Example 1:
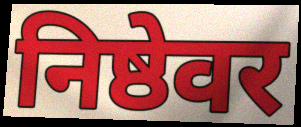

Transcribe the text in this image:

निष्ठेवर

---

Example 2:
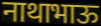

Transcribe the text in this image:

नाथाभाऊ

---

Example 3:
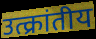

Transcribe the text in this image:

उत्क्रांतीय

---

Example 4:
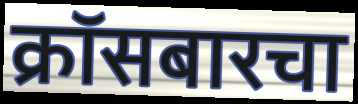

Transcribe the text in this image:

क्रॉसबारचा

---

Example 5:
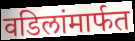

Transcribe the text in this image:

वडिलांमार्फत